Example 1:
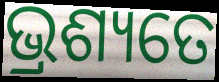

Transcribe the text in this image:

ଭ୍ରଶ୍ୟତେ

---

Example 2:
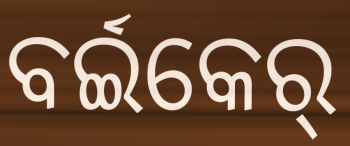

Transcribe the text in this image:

ବର୍ଇକେର୍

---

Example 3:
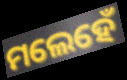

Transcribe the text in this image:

ମଲେହେଁ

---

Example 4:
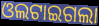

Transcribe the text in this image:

ଓଲଟାଇଗଲା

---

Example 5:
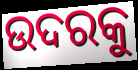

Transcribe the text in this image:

ଉଦରକୁ